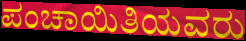
ಪಂಚಾಯಿತಿಯವರು